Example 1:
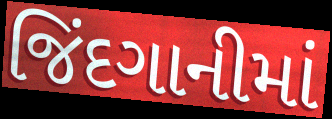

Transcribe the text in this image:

જિંદગાનીમાં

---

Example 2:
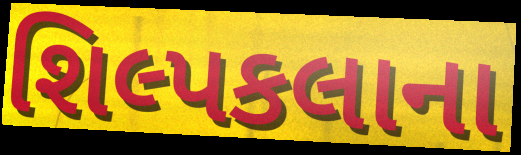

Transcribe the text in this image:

શિલ્પકલાના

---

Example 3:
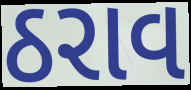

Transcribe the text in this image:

ઠરાવ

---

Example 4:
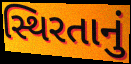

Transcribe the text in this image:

સ્થિરતાનું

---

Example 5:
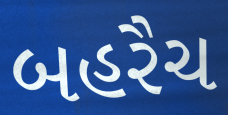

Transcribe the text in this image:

બહરૈચ